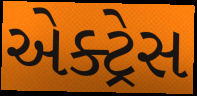
એક્ટ્રેસ